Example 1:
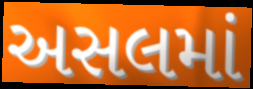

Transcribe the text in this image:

અસલમાં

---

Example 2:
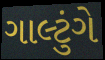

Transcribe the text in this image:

ગાલ્ટુંગે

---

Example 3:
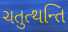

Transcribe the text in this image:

ચતુત્થન્તિ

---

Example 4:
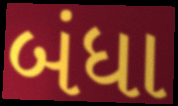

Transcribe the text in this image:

બંધા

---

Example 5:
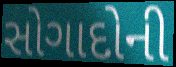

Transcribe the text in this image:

સોગાદોની